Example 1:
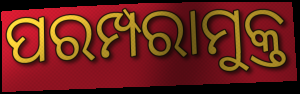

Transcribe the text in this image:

ପରମ୍ପରାମୁକ୍ତ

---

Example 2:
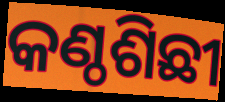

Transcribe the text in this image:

କଣ୍ଠଶିଛୀ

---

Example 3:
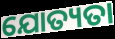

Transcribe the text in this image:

ଯୋତ୍ୟତା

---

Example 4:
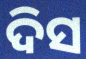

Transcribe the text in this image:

ଦିସ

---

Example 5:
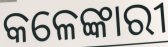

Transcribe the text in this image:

କଳେଙ୍କାରୀ